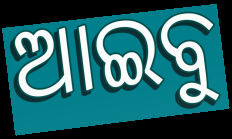
ଆଇବୁ